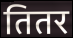
तितर